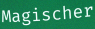
Magischer